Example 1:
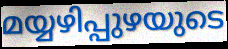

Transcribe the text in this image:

മയ്യഴിപ്പുഴയുടെ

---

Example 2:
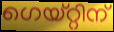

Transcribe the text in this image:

ഗെയ്റ്റിന്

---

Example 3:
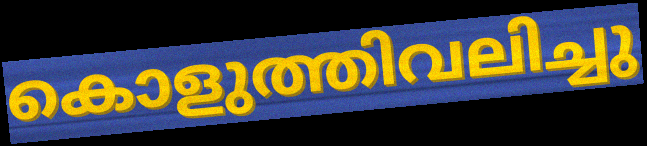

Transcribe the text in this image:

കൊളുത്തിവലിച്ചു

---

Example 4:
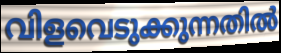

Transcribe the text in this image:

വിളവെടുക്കുന്നതിൽ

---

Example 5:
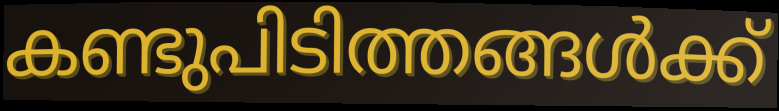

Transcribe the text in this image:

കണ്ടുപിടിത്തങ്ങൾക്ക്